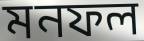
মনফল